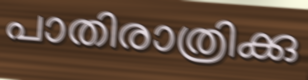
പാതിരാത്രിക്കു